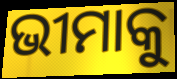
ଭୀମାକୁ